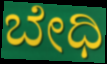
ಬೇಧಿ